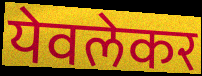
येवलेकर